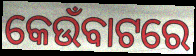
କେଉଁବାଟରେ